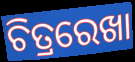
ଚିତ୍ରରେଖା